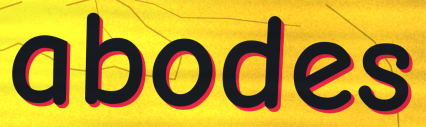
abodes